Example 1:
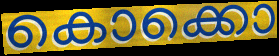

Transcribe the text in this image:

കൊക്കൊ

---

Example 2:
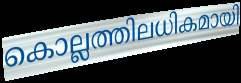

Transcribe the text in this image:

കൊല്ലത്തിലധികമായി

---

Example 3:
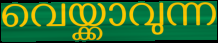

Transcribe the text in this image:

വെയ്ക്കാവുന്ന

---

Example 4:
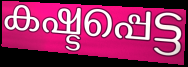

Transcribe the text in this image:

കഷ്ടപ്പെട്ട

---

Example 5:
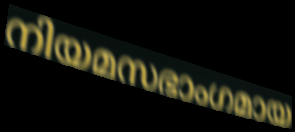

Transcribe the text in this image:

നിയമസഭാംഗമായ